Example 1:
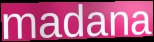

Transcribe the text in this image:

madana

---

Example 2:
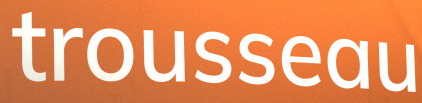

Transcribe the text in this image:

trousseau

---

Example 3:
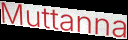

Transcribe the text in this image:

Muttanna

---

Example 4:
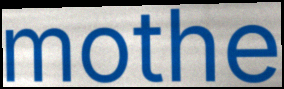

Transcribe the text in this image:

mothe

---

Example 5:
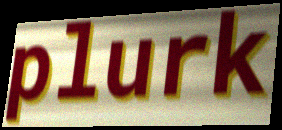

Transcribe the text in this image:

plurk